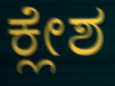
ಕ್ಲೇಶ